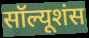
सॉल्यूशंस